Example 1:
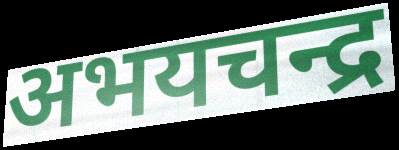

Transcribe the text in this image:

अभयचन्द्र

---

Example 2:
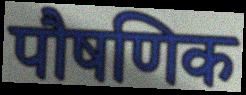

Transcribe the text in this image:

पौषणिक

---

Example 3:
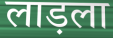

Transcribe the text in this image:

लाड़ला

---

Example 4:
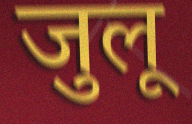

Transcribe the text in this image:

जुलू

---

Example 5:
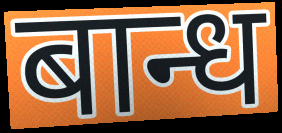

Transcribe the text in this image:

बान्ध